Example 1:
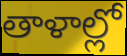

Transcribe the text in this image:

తాళాల్లో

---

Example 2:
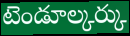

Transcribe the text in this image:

టెండూల్కర్కు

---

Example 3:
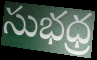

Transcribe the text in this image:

సుభధ్ర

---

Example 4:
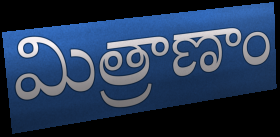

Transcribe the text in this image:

మిత్రాణాం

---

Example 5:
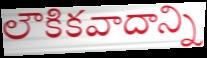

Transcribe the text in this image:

లౌకికవాదాన్ని